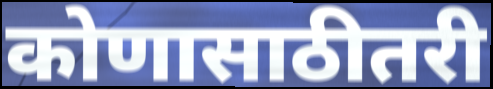
कोणासाठीतरी